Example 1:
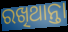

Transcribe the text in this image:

ରଖିଥାନ୍ତା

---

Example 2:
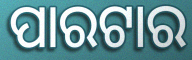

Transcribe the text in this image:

ପାରଟାର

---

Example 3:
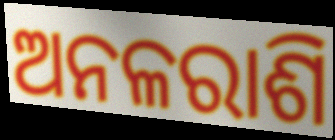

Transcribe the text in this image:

ଅନଳରାଶି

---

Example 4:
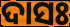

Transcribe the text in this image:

ଦାସଃ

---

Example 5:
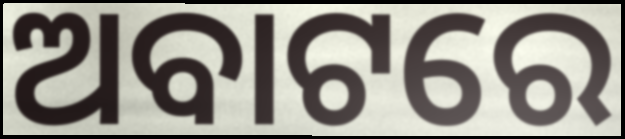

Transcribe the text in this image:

ଅବାଟରେ